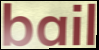
bail